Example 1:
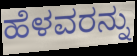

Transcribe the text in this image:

ಹೆಳವರನ್ನು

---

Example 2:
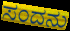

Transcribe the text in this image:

ಸಂದನು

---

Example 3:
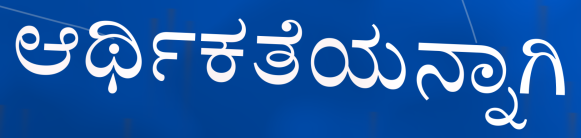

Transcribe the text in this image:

ಆರ್ಥಿಕತೆಯನ್ನಾಗಿ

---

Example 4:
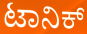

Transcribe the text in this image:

ಟಾನಿಕ್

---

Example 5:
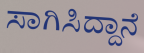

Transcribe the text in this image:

ಸಾಗಿಸಿದ್ದಾನೆ